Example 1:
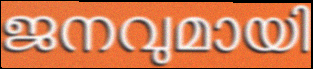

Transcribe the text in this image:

ജനവുമായി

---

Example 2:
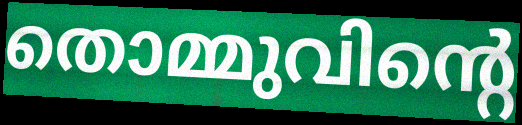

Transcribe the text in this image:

തൊമ്മുവിന്റെ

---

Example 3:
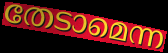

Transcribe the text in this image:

തേടാമെന്ന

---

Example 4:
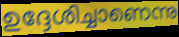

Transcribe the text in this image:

ഉദ്ദേശിച്ചാണെന്നു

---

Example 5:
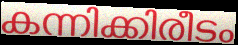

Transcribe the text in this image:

കന്നിക്കിരീടം